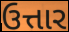
ઉત્તાર